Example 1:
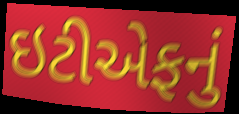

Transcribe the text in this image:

ઇટીએફનું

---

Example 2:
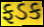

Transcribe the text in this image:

ફડક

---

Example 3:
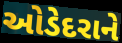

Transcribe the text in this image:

ઓડેદરાને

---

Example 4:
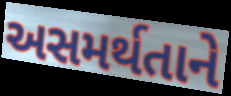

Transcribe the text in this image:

અસમર્થતાને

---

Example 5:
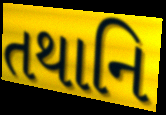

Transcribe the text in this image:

તથાનિ